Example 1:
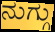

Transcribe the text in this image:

ನುಗ್ಗು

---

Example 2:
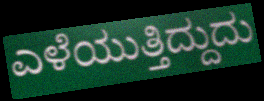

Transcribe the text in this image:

ಎಳೆಯುತ್ತಿದ್ದುದು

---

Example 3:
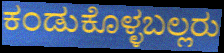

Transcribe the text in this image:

ಕಂಡುಕೊಳ್ಳಬಲ್ಲರು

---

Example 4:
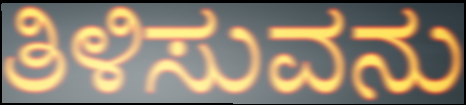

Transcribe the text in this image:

ತಿಳಿಸುವನು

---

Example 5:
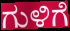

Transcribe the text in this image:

ಗುಳಿಗೆ